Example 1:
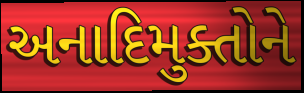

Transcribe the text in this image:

અનાદિમુક્તોને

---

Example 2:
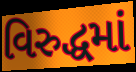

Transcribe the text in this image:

વિરુદ્ધમાં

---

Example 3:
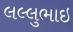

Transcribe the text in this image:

લલ્લુભાઇ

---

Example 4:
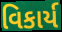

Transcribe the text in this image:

વિકાર્ય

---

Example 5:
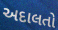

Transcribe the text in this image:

અદાલતો